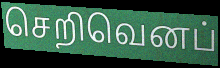
செறிவெனப்